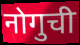
नोगुची